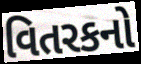
વિતરકનો